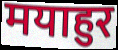
मयाहुर